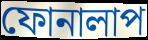
ফোনালাপ